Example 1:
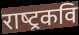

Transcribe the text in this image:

राष्ट्रकवि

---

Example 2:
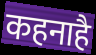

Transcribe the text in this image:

कहनाहै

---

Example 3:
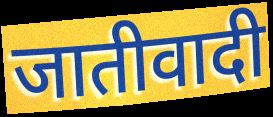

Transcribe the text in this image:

जातीवादी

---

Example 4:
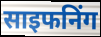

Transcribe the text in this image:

साइफनिंग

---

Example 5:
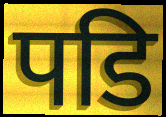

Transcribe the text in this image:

पडि